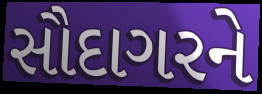
સૌદાગરને